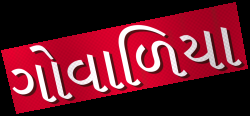
ગોવાળિયા